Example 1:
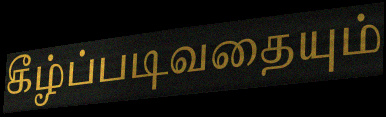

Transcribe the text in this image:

கீழ்ப்படிவதையும்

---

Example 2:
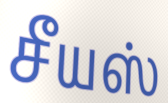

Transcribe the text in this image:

சீயஸ்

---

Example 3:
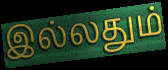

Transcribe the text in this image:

இல்லதும்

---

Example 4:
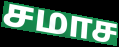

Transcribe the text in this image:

சமாச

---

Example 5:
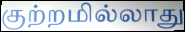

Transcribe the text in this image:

குற்றமில்லாது